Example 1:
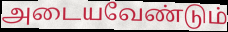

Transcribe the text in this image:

அடையவேண்டும்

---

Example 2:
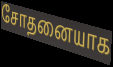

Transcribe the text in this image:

சோதனையாக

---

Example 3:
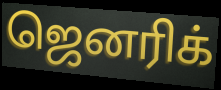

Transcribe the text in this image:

ஜெனரிக்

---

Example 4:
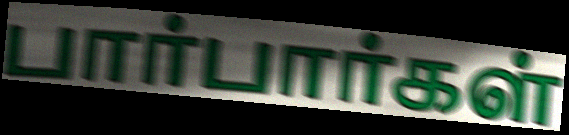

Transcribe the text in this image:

பார்பார்கள்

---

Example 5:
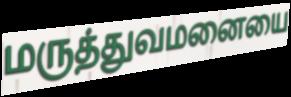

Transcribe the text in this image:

மருத்துவமனையை